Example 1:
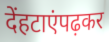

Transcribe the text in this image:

देंहटाएंपढ़कर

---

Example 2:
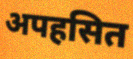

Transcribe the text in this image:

अपहसित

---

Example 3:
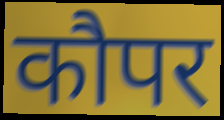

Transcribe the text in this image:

कौपर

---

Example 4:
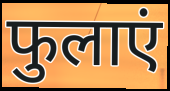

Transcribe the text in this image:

फुलाएं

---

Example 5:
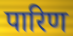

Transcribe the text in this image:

पारिण